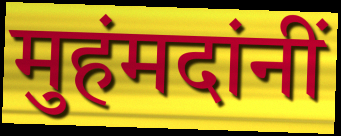
मुहंमदांनीं